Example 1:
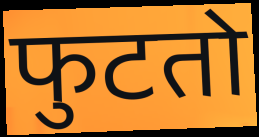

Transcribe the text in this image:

फुटतो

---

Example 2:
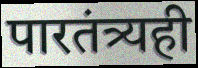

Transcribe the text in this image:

पारतंत्र्यही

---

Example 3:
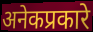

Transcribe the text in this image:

अनेकप्रकारे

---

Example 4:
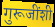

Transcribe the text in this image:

गुरूजींशी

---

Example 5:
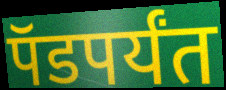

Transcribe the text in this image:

पॅडपर्यंत